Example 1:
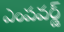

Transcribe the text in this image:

ఎంపవర్డ్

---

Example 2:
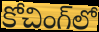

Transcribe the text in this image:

కోచింగ్‌లో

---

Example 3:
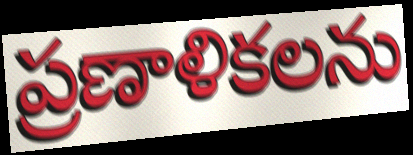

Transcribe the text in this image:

ప్రణాళికలను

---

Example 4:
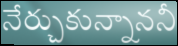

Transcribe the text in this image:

నేర్చుకున్నాననీ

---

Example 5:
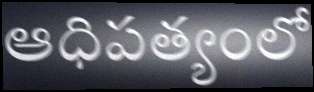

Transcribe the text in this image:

ఆధిపత్యంలో